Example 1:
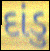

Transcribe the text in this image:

દાંડુ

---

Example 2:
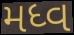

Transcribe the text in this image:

મધ્વ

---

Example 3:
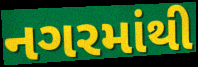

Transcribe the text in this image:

નગરમાંથી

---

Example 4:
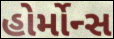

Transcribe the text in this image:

હોર્મોન્સ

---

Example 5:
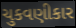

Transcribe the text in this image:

ચુકવણીકાર